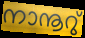
നാനൂറു്